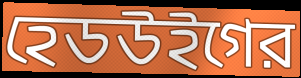
হেডউইগের